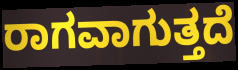
ರಾಗವಾಗುತ್ತದೆ